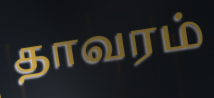
தாவரம்